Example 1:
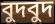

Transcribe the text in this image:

বুদবুদ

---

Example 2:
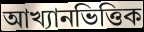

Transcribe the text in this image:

আখ্যানভিত্তিক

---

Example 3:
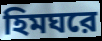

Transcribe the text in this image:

হিমঘরে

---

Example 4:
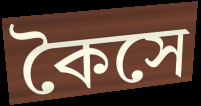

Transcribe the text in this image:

কৈসে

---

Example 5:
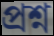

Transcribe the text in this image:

প্রশ্ন